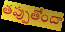
తప్పుతోందా